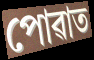
পোৱাত